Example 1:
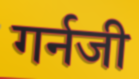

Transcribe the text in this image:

गर्नजी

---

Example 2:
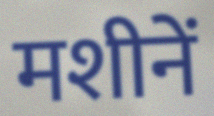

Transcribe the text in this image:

मशीनें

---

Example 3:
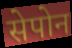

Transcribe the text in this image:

सेपोन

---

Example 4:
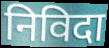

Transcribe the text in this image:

निविदा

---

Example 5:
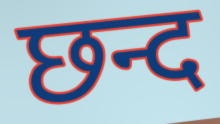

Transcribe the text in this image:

छन्‍द